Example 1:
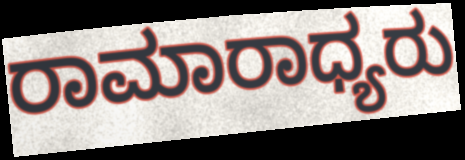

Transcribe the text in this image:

ರಾಮಾರಾಧ್ಯರು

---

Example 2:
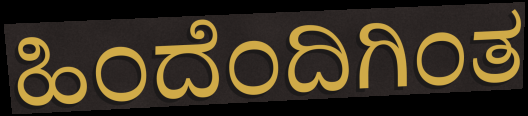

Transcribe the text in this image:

ಹಿಂದೆಂದಿಗಿಂತ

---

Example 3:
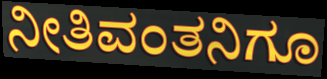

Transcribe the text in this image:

ನೀತಿವಂತನಿಗೂ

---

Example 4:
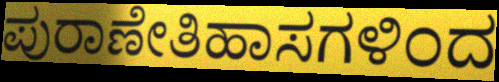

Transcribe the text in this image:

ಪುರಾಣೇತಿಹಾಸಗಳಿಂದ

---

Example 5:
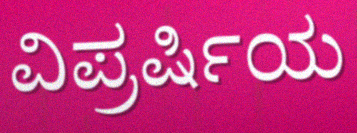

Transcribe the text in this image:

ವಿಪ್ರರ್ಷಿಯ